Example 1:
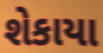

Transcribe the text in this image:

શેકાયા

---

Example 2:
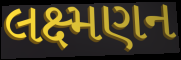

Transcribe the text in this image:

લક્ષ્મણન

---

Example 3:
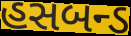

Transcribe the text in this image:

હસબન્ડ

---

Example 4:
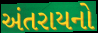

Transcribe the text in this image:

અંતરાયનો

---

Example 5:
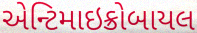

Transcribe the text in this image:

એન્ટિમાઇક્રોબાયલ